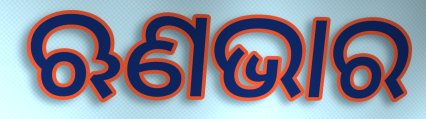
ଋଣଭାର